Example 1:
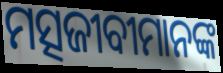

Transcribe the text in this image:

ମତ୍ସଜୀବୀମାନଙ୍କ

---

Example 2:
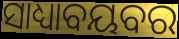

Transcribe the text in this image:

ସାଧ୍ୟାବୟବର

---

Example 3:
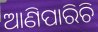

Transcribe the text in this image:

ଆଣିପାରିଚି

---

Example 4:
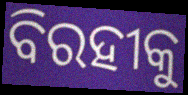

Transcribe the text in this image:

ବିରହୀକୁ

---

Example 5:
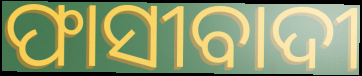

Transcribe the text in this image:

ଫାସୀବାଦୀ